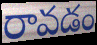
రావడం